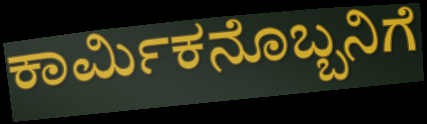
ಕಾರ್ಮಿಕನೊಬ್ಬನಿಗೆ